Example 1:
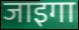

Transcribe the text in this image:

जाइगा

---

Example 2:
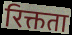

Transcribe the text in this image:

रिक्तता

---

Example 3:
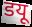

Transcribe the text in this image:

डयू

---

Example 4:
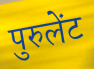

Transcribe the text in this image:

पुरुलेंट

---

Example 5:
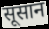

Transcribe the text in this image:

सूसान